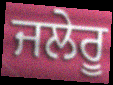
ਜਲੇਰੂ